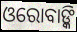
ଓରୋବାଙ୍କି